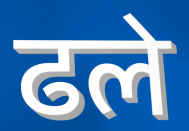
ढले